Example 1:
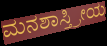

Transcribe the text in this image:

ಮನಶಾಸ್ತ್ರೀಯ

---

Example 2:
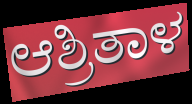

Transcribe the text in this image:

ಆಶ್ರಿತಾಳ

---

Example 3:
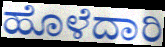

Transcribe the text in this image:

ಹೊಳೆದಾರಿ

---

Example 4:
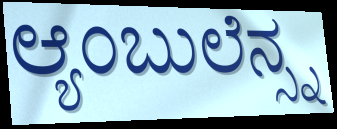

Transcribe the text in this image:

ಆ್ಯಂಬುಲೆನ್ಸ್ನ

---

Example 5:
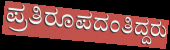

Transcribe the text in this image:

ಪ್ರತಿರೂಪದಂತಿದ್ದರು